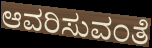
ಆವರಿಸುವಂತೆ